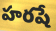
హరషే